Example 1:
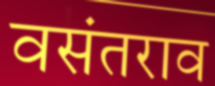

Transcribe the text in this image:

वसंतराव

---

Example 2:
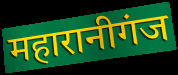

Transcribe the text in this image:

महारानीगंज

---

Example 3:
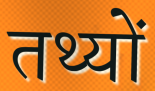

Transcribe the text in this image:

तथ्यों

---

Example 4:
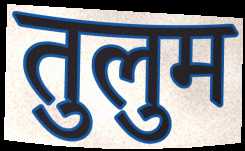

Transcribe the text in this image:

तुलुम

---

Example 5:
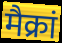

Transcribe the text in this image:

मैक्रां